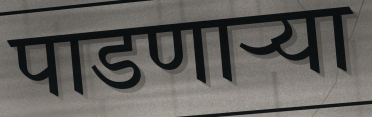
पाडणाऱ्या